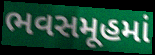
ભવસમૂહમાં